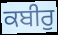
ਕਬੀਰੁ